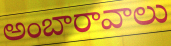
అంబారావాలు